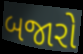
બજારો